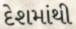
દેશમાંથી